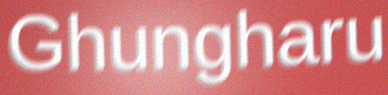
Ghungharu